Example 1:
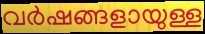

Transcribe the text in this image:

വർഷങ്ങളായുള്ള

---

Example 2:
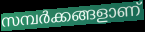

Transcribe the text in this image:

സമ്പർക്കങ്ങളാണ്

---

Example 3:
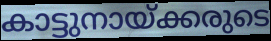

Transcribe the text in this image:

കാട്ടുനായ്ക്കരുടെ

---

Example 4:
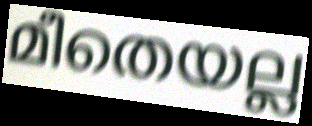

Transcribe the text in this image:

മീതെയല്ല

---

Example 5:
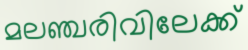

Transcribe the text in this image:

മലഞ്ചരിവിലേക്ക്